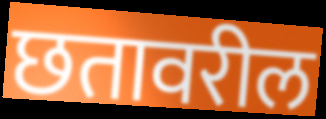
छतावरील